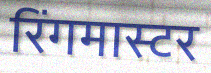
रिंगमास्टर